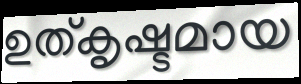
ഉത്കൃഷ്ടമായ